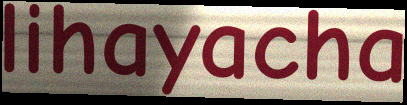
lihayacha